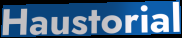
Haustorial